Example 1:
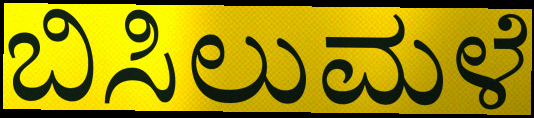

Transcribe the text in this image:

ಬಿಸಿಲುಮಳೆ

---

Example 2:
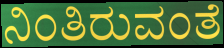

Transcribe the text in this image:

ನಿಂತಿರುವಂತೆ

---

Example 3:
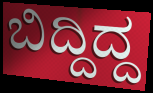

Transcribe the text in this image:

ಬಿದ್ದಿದ್ದ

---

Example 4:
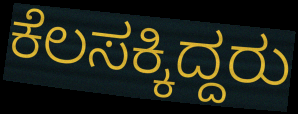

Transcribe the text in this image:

ಕೆಲಸಕ್ಕಿದ್ದರು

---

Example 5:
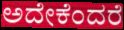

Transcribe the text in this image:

ಅದೇಕೆಂದರೆ